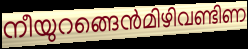
നീയുറങ്ങെൻമിഴിവണ്ടിണ